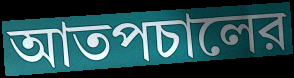
আতপচালের